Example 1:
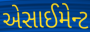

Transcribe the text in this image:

એસાઈમેન્ટ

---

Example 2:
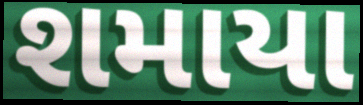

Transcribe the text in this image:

શમાયા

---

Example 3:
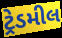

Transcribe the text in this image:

ટ્રેડમીલ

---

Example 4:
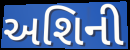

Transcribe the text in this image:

અશિની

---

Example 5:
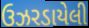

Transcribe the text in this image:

ઉઝરડાયેલી